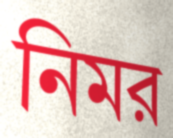
নিমর